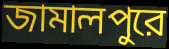
জামালপুরে